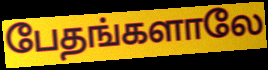
பேதங்களாலே